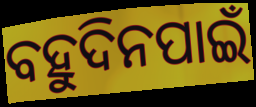
ବହୁଦିନପାଇଁ